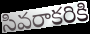
సివరాకరికి